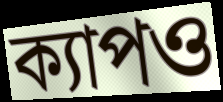
ক্যাপও